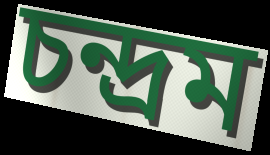
চন্দ্রম